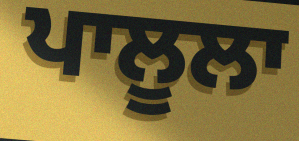
ਪਾਲੂਲਾ